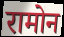
रामोन